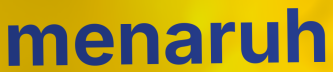
menaruh